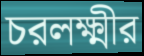
চরলক্ষ্মীর